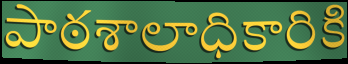
పాఠశాలాధికారికి